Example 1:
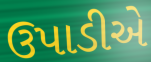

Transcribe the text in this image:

ઉપાડીએ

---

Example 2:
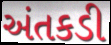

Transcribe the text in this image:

અંતકડી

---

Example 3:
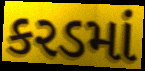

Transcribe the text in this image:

કરડમાં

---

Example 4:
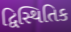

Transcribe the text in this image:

દ્વિસ્થિતિક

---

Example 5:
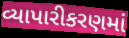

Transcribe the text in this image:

વ્યાપારીકરણમાં